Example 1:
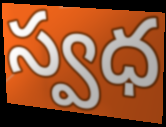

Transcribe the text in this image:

స్వధ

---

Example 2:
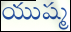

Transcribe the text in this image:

యుష్మ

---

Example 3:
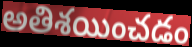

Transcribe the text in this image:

అతిశయించడం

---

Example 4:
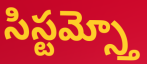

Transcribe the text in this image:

సిస్టమ్స్తో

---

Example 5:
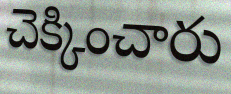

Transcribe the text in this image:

చెక్కించారు